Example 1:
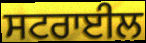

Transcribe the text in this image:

ਸਟਰਾਈਲ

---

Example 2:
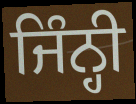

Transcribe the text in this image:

ਜਿੰਨ੍ਹੀ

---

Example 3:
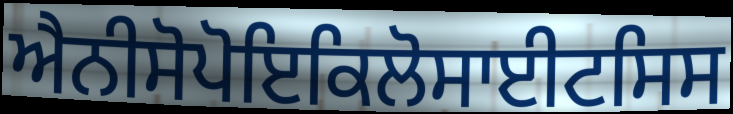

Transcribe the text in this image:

ਐਨੀਸੋਪੋਇਕਿਲੋਸਾਈਟਸਿਸ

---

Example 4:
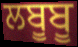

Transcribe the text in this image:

ਲਬੂਬੂ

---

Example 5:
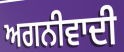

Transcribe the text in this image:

ਅਗਨੀਵਾਦੀ